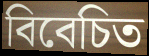
বিবেচিত